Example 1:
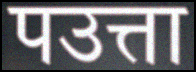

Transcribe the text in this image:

पउत्ता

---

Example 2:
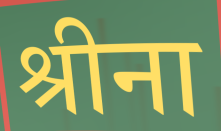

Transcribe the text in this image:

श्रीना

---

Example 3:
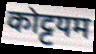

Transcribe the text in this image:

कोट्टयम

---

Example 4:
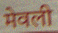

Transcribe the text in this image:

मेवली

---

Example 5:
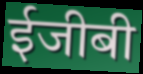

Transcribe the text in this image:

ईजीबी